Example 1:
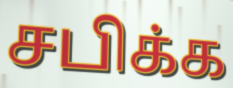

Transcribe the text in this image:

சபிக்க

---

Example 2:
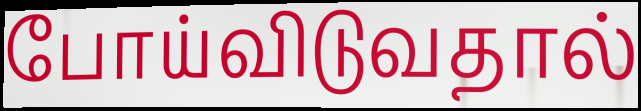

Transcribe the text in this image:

போய்விடுவதால்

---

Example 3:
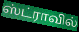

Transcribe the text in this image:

ஸ்ட்ராவில்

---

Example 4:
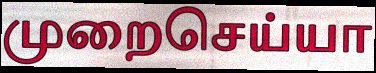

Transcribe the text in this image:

முறைசெய்யா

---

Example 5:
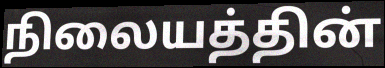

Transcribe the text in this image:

நிலையத்தின்